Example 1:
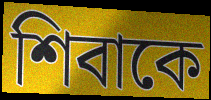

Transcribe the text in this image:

শিবাকে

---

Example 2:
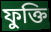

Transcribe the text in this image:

ফুক্তি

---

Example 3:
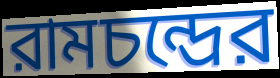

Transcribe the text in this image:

রামচন্দ্রের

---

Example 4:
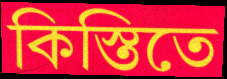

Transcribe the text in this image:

কিস্তিতে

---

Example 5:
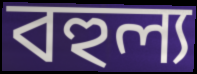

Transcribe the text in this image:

বহুল্য